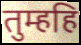
तुम्हहि